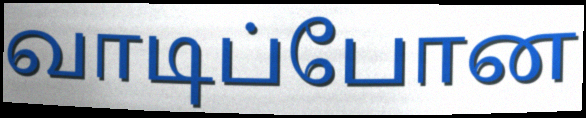
வாடிப்போன